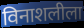
विनाशलीला